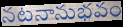
నటనానుభవం